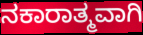
ನಕಾರಾತ್ಮವಾಗಿ